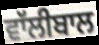
ਵਾੱਲੀਬਾਲ